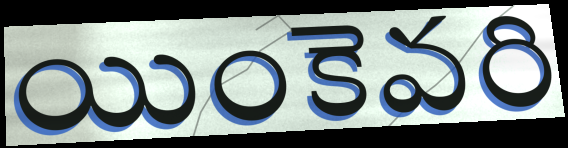
యింకెవరి